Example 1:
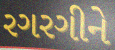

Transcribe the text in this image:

રગરગીને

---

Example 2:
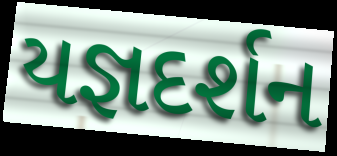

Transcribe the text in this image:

યજ્ઞદર્શન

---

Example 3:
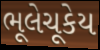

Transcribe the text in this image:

ભૂલેચૂકેય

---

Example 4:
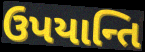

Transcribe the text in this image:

ઉપયાન્તિ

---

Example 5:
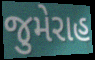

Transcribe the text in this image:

જુમેરાહ